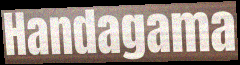
Handagama